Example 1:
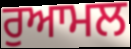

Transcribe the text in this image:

ਰੁਆਮਲ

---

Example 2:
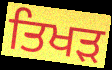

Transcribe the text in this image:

ਤਿਖੜ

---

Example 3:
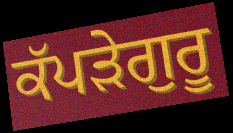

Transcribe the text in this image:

ਕੱਪੜੇਗੁਰੂ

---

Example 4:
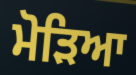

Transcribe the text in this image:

ਮੋੜਿਆ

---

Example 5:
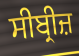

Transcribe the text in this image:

ਸੀਬ੍ਰੀਜ਼